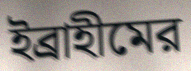
ইব্রাহীমের